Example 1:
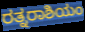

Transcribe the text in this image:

ರತ್ನರಾಶಿಯಂ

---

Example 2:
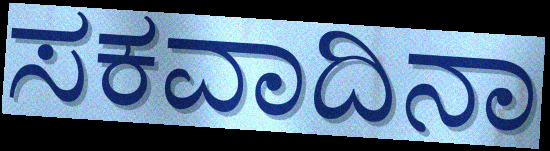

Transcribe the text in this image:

ಸಕವಾದಿನಾ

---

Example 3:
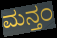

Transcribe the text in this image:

ಮನ್ತಂ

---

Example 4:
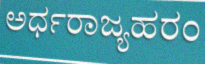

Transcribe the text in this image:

ಅರ್ಧರಾಜ್ಯಹರಂ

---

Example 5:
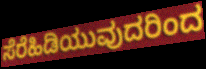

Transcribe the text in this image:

ಸೆರೆಹಿಡಿಯುವುದರಿಂದ